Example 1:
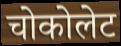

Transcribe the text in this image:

चोकोलेट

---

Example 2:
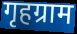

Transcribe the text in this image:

गृहग्राम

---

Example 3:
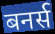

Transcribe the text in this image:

बनर्स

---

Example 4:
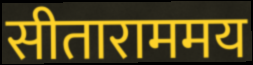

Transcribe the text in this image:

सीताराममय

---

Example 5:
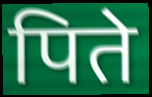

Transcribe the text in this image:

पिते